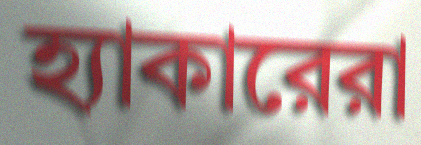
হ্যাকারেরা